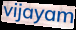
vijayam